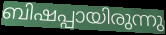
ബിഷപ്പായിരുന്നു